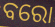
ବରୋ